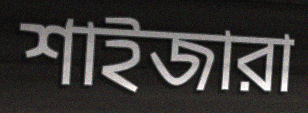
শাইজারা